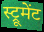
स्ट्रूमेंट